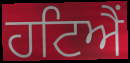
ਹਟਿਐਂ